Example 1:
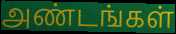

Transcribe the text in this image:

அண்டங்கள்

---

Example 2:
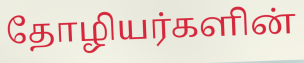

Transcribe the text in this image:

தோழியர்களின்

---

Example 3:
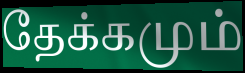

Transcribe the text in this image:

தேக்கமும்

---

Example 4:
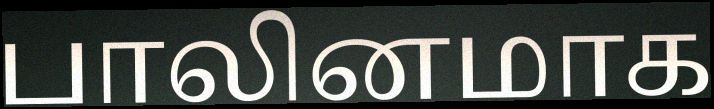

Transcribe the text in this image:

பாலினமாக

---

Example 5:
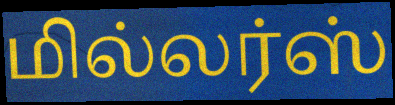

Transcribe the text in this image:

மில்லர்ஸ்